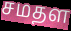
சமதள